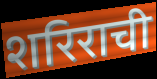
शरिराची